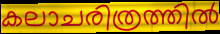
കലാചരിത്രത്തിൽ